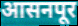
आसनपूर